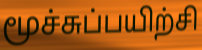
மூச்சுப்பயிற்சி